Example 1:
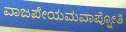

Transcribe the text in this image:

ವಾಜಪೇಯಮವಾಪ್ನೋತಿ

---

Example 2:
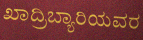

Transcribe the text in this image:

ಖಾದ್ರಿಬ್ಯಾರಿಯವರ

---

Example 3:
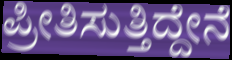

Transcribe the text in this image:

ಪ್ರೀತಿಸುತ್ತಿದ್ದೇನೆ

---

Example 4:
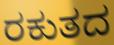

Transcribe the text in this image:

ರಕುತದ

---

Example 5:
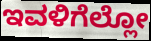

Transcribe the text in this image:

ಇವಳಿಗೆಲ್ಲೋ